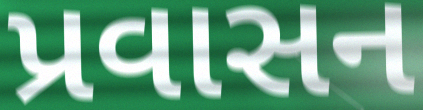
પ્રવાસન